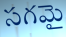
సగమై